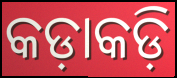
କଡ଼ାକଡ଼ି